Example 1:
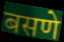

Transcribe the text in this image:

बसणे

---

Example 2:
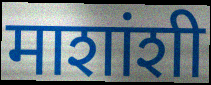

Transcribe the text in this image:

माशांशी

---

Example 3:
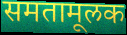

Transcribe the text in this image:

समतामूलक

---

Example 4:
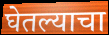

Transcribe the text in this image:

घेतल्याचा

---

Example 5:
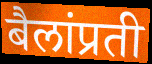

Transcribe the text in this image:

बैलांप्रती